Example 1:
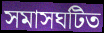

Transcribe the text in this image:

সমাসঘটিত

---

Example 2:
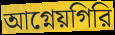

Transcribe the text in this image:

আগ্নেয়গিরি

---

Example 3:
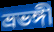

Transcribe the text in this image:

ভ্রভঙ্গী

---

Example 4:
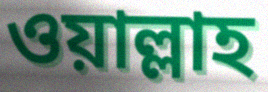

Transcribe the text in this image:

ওয়াল্লাহ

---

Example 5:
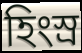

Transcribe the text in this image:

হিংস্র